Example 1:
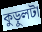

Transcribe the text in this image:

কুড়ুলটা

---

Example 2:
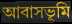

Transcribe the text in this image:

আবাসভূমি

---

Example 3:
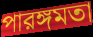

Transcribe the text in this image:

পারঙ্গমতা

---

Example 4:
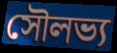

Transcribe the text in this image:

সৌলভ্য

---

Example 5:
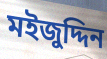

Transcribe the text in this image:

মইজুদ্দিন